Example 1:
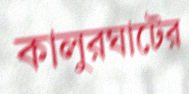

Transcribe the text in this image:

কালুরঘাটের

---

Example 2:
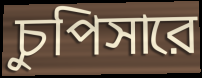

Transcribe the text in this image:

চুপিসারে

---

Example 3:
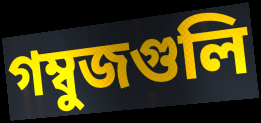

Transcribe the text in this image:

গম্বুজগুলি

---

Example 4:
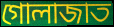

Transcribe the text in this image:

গোলাজাত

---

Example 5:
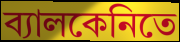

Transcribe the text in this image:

ব্যালকেনিতে